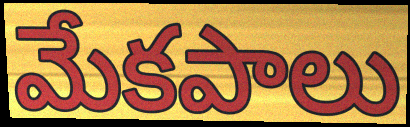
మేకపాలు